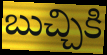
బుచ్చికి